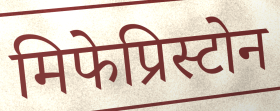
मिफेप्रिस्टोन